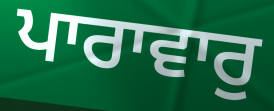
ਪਾਰਾਵਾਰੁ